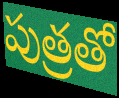
పుత్రతో